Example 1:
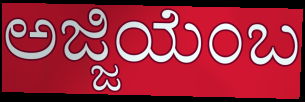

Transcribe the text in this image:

ಅಜ್ಜಿಯೆಂಬ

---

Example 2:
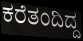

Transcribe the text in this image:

ಕರೆತಂದಿದ್ದ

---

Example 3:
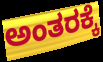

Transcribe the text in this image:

ಅಂತರಕ್ಕೆ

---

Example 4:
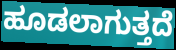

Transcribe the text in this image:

ಹೂಡಲಾಗುತ್ತದೆ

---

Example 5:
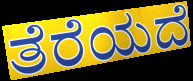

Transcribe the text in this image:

ತೆರೆಯದೆ